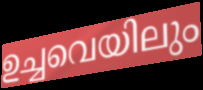
ഉച്ചവെയിലും